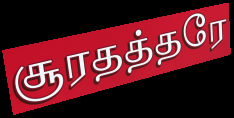
சூரதத்தரே